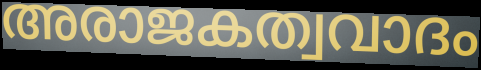
അരാജകത്വവാദം